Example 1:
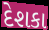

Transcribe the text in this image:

દેશકા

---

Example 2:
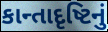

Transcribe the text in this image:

કાન્તાદૃષ્ટિનું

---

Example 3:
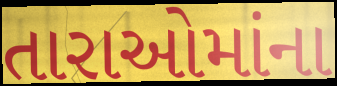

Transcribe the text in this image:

તારાઓમાંના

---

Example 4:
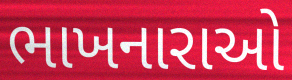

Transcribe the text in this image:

ભાખનારાઓ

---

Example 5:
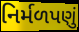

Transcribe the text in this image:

નિર્મળપણું